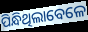
ପିନ୍ଧିଥିଲାବେଳେ